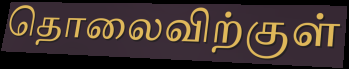
தொலைவிற்குள்